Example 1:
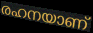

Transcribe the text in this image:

രഹനയാണ്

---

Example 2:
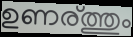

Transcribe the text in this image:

ഉണര്ത്തും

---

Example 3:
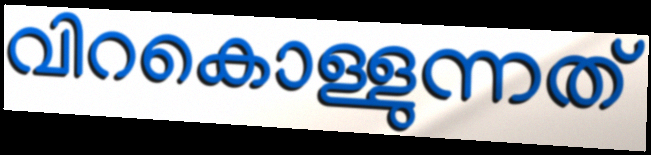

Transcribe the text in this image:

വിറകൊള്ളുന്നത്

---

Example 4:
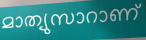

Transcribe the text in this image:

മാത്യുസാറാണ്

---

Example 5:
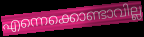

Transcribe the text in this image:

എന്നെക്കൊണ്ടാവില്ല